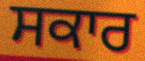
ਸਕਾਰ